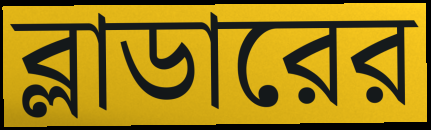
ব্লাডারের